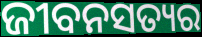
ଜୀବନସତ୍ୟର